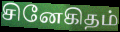
சினேகிதம்